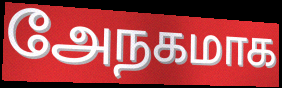
அேநகமாக